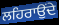
ਲਹਿਰਾਉਂਦੇ